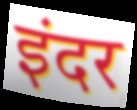
इंदर